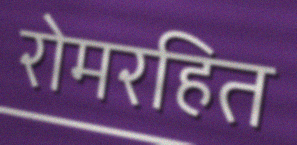
रोमरहित